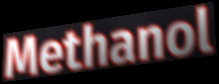
Methanol